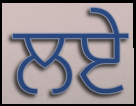
ਲਏ